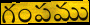
గంపము